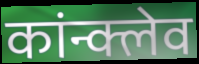
कांन्क्लेव